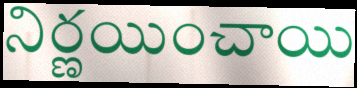
నిర్ణయించాయి